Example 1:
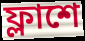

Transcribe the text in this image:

ফ্লাশে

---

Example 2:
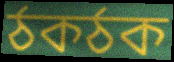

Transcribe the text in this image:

ঠকঠক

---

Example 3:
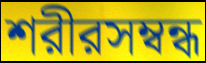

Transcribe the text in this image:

শরীরসম্বন্ধ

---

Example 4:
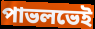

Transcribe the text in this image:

পাভলভেই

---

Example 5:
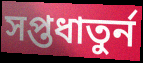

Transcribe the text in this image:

সপ্তধাতুর্ন